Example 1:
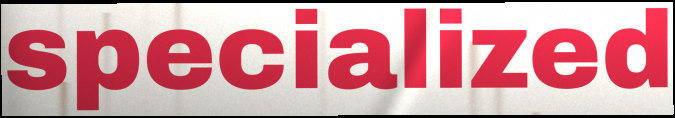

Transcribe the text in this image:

specialized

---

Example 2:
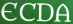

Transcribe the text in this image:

ECDA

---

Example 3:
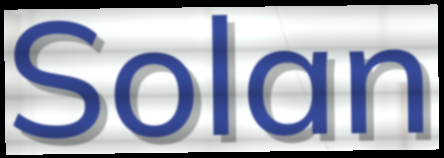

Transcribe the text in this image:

Solan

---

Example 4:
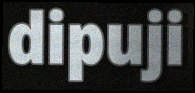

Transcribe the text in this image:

dipuji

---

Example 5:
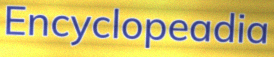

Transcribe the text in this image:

Encyclopeadia